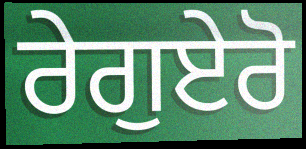
ਰੇਗੁਏਰੋ